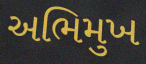
અભિમુખ